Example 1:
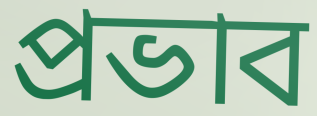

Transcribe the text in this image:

প্ৰভাব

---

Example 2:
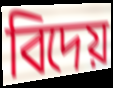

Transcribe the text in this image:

বিদেয়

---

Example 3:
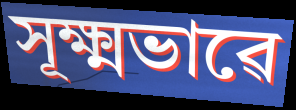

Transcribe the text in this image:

সূক্ষ্মভাৱে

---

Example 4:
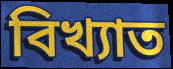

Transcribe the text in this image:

বিখ্যাত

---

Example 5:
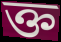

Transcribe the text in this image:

ক্ত